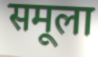
समूला